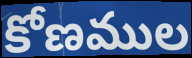
కోణముల